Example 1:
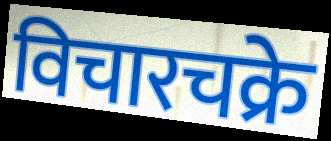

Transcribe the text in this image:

विचारचक्रे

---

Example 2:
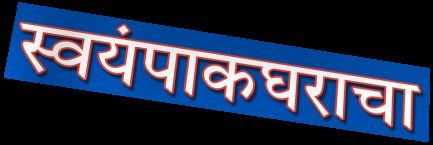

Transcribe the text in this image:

स्वयंपाकघराचा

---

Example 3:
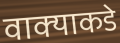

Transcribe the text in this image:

वाक्याकडे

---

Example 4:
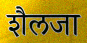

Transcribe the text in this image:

शैलजा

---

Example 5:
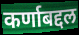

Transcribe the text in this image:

कर्णाबद्दल